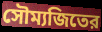
সৌম্যজিতের